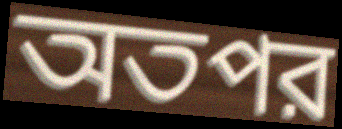
অতপর